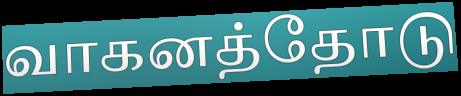
வாகனத்தோடு